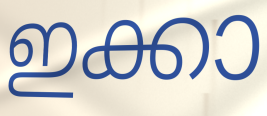
ഇക്കാ